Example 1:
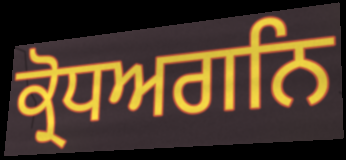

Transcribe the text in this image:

ਕ੍ਰੋਧਅਗਨਿ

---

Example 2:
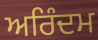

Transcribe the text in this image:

ਅਰਿੰਦਮ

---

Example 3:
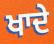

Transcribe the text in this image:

ਖਾਦੇ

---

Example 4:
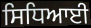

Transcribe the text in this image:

ਸਿਧਿਆਈ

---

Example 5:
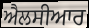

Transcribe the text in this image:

ਐਲਸੀਆਰ